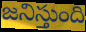
జనిస్తుంది